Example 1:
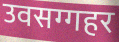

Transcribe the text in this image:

उवसग्गहर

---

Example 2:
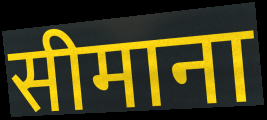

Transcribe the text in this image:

सीमाना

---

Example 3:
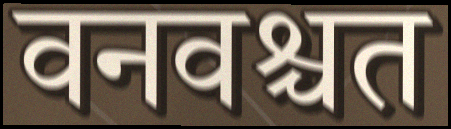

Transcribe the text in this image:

वनवश्चत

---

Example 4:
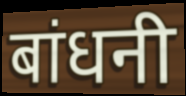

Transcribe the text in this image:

बांधनी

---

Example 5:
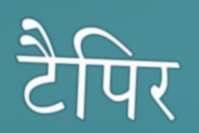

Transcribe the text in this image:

टैपिर